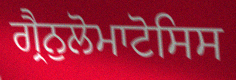
ਗ੍ਰੈਨੁਲੋਮਾਟੋਸਿਸ